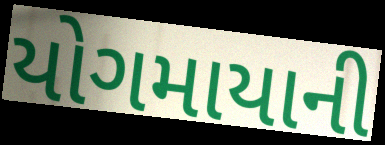
યોગમાયાની